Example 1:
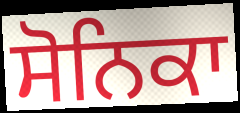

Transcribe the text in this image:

ਸੋਨਿਕਾ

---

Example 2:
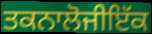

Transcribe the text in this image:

ਤਕਨਾਲੋਜੀਇੱਕ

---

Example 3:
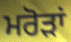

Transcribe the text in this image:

ਮਰੋੜਾਂ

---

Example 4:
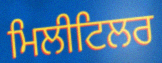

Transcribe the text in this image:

ਮਿਲੀਟਿਲਰ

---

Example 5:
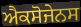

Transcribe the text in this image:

ਐਕਸੋਜੇਨਸ